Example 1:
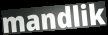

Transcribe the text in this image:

mandlik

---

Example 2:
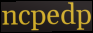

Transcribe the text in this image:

ncpedp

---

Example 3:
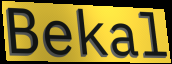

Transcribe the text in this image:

Bekal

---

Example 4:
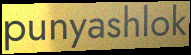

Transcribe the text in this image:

punyashlok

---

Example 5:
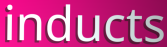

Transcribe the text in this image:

inducts